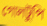
গোলটুপি